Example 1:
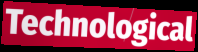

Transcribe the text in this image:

Technological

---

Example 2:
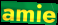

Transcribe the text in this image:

amie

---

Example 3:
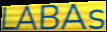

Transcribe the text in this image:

LABAs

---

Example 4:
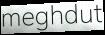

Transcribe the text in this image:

meghdut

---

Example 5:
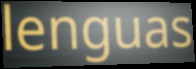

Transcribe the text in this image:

lenguas